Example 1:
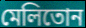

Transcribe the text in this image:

মেলিতোন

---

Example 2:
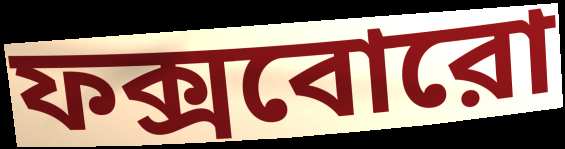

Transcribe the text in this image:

ফক্সবোরো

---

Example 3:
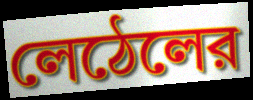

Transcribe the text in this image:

লেঠেলের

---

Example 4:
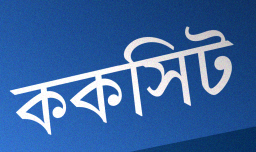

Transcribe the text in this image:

ককসিট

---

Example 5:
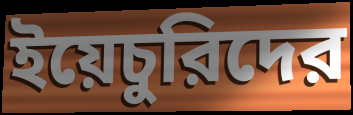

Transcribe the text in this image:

ইয়েচুরিদের